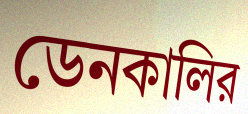
ডেনকালির